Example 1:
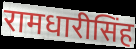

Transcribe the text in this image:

रामधारीसिंह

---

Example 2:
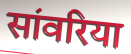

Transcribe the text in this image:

सांवरिया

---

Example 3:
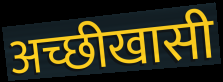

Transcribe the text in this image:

अच्छीखासी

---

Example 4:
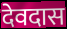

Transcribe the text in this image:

देवदास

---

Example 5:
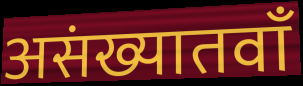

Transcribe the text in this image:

असंख्यातवाँ